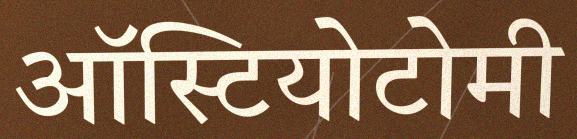
ऑस्टियोटोमी